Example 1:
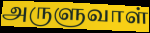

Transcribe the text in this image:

அருளுவாள்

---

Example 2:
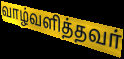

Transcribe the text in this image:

வாழ்வளித்தவர்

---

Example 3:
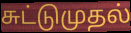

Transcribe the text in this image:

சுட்டுமுதல்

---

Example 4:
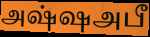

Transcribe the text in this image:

அஷ்ஷஅபீ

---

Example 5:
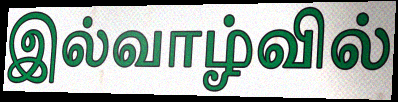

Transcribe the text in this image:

இல்வாழ்வில்